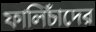
ফালিচাঁদের